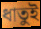
ধাতুই